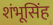
शंभूसिंह